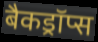
बैकड्रॉप्स